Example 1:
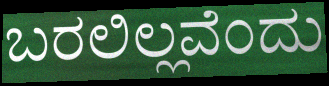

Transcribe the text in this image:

ಬರಲಿಲ್ಲವೆಂದು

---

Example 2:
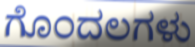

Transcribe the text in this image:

ಗೊಂದಲಗಳು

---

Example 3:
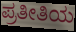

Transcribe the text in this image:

ಪ್ರತೀತಿಯ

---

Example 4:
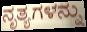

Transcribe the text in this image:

ನೃತ್ಯಗಳನ್ನು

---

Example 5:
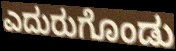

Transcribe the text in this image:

ಎದುರುಗೊಂಡು